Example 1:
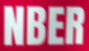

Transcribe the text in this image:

NBER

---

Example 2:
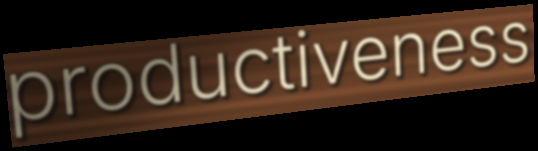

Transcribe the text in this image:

productiveness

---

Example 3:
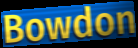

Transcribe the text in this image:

Bowdon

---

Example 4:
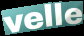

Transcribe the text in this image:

velle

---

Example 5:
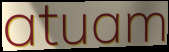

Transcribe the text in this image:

atuam